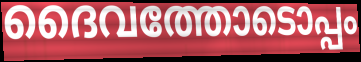
ദൈവത്തോടൊപ്പം